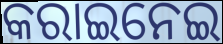
କରାଇନେଇ